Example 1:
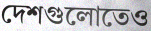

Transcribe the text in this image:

দেশগুলোতেও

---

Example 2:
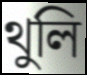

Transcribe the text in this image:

থুলি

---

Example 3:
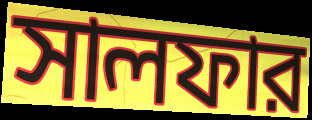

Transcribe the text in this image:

সালফার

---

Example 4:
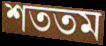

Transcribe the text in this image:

শততম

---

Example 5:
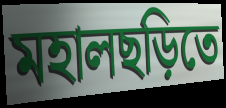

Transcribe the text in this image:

মহালছড়িতে